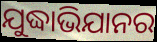
ଯୁଦ୍ଧାଭିଯାନର